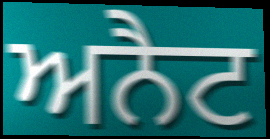
ਅਨੈਟ